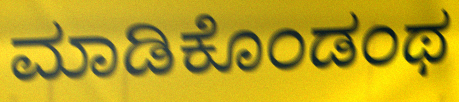
ಮಾಡಿಕೊಂಡಂಥ